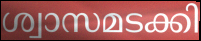
ശ്വാസമടക്കി